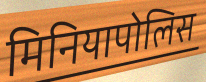
मिनियापोलिस